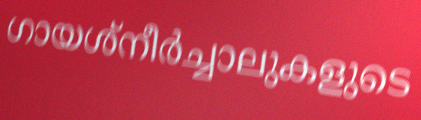
ഗായശ്നീർച്ചാലുകളുടെ